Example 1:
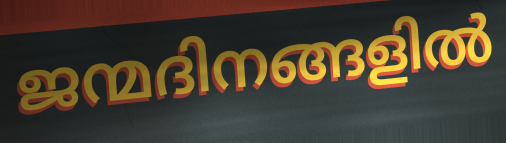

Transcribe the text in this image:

ജന്മദിനങ്ങളിൽ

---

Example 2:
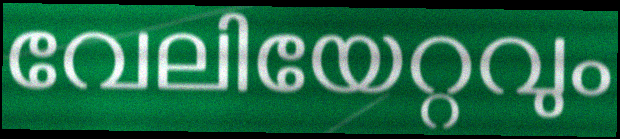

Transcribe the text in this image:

വേലിയേറ്റവും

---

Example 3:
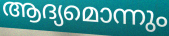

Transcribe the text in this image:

ആദ്യമൊന്നും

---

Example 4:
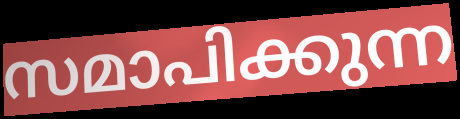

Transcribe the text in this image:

സമാപിക്കുന്ന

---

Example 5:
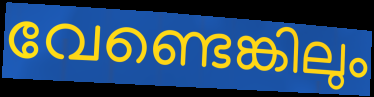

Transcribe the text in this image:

വേണ്ടെങ്കിലും